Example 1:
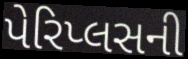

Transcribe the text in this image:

પેરિપ્લસની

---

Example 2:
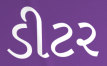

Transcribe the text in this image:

ડીટર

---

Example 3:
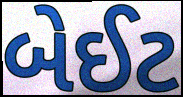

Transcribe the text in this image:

બેઈટ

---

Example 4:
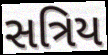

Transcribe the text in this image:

સત્રિય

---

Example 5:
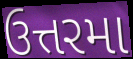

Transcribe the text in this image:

ઉત્તરમા